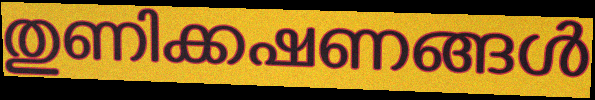
തുണിക്കഷണങ്ങൾ